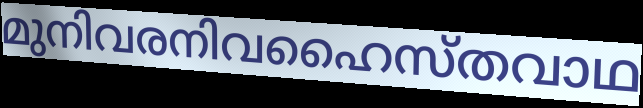
മുനിവരനിവഹൈസ്തവാഥ